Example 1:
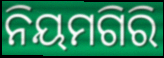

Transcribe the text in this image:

ନିୟମଗିରି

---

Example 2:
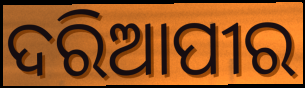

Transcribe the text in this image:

ଦରିଆପୀର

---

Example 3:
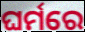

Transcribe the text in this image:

ଘର୍ମରେ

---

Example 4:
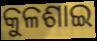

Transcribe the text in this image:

କୁଳଶାଇ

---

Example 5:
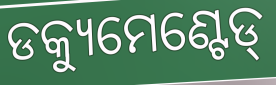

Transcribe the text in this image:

ଡକ୍ୟୁମେଣ୍ଟେଡ୍